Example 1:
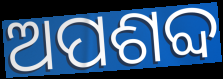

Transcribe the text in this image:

ଅପଶବ୍ଦ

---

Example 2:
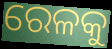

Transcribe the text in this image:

ରେଳକୁ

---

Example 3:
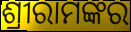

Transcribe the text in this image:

ଶ୍ରୀରାମଙ୍କର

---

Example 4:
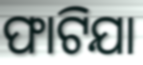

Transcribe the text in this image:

ଫାଟିଯା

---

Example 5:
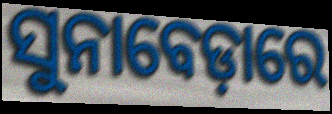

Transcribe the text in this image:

ସୁନାବେଡ଼ାରେ